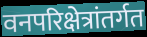
वनपरिक्षेत्रांतर्गत